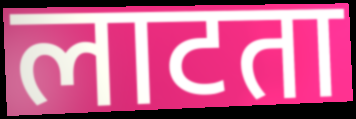
लाटता